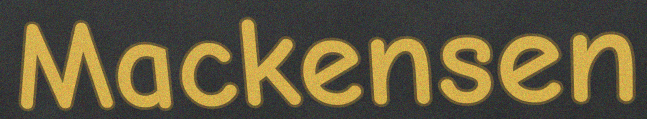
Mackensen